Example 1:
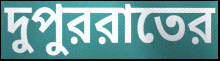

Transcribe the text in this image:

দুপুররাতের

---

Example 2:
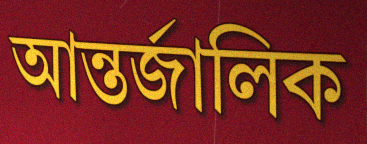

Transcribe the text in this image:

আন্তর্জালিক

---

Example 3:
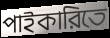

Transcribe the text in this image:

পাইকারিতে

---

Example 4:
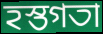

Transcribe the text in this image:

হস্তগতা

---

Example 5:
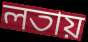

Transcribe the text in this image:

লতায়